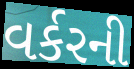
વર્કરની